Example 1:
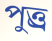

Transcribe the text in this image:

পুত্ত্র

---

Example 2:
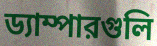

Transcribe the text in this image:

ড্যাম্পারগুলি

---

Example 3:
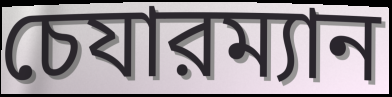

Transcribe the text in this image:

চেযারম্যান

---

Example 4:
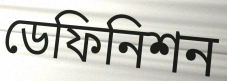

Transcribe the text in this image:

ডেফিনিশন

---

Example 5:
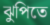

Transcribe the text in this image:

ঝুপিতে